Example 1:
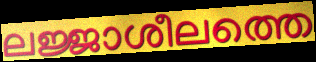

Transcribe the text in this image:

ലജ്ജാശീലത്തെ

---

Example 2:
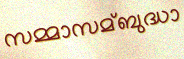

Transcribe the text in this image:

സമ്മാസമ്ബുദ്ധാ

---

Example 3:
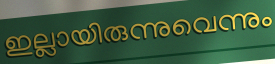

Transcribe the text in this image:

ഇല്ലായിരുന്നുവെന്നും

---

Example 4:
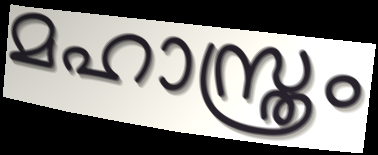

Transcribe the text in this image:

മഹാസ്ത്രം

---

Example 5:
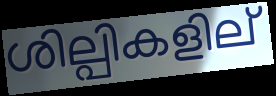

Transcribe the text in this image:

ശില്പികളില്